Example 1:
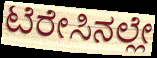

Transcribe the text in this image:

ಟೆರೇಸಿನಲ್ಲೇ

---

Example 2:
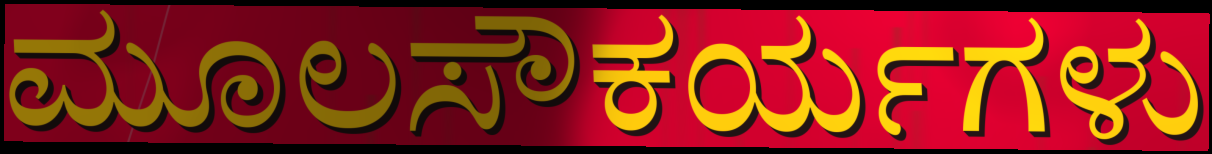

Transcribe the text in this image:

ಮೂಲಸೌಕರ್ಯಗಳು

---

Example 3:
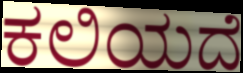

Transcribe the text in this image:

ಕಲಿಯದೆ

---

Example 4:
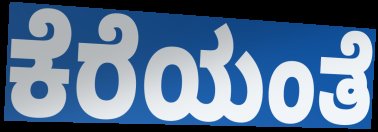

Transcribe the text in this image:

ಕೆರೆಯಂತೆ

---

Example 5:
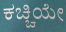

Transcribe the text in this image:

ಕಚ್ಚಿಯೇ